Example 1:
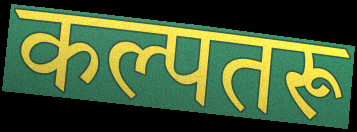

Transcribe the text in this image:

कल्पतरू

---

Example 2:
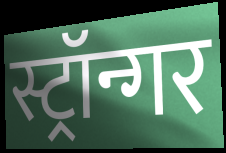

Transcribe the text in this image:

स्ट्रॉन्गर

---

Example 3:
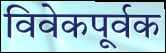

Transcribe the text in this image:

विवेकपूर्वक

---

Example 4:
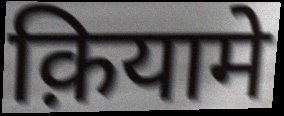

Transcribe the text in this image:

क़ियामे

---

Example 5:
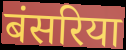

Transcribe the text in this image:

बंसरिया